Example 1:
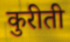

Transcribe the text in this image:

कुरीती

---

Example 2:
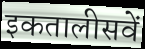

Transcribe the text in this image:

इकतालीसवें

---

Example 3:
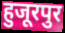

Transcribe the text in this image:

हुजूरपुर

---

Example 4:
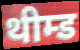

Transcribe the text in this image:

थीम्ड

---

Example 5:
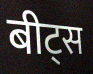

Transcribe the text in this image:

बीट्स